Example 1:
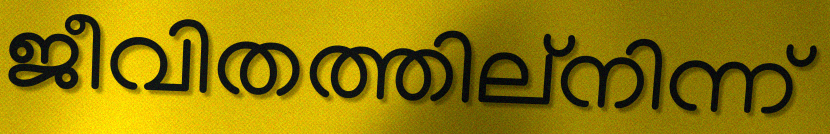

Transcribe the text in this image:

ജീവിതത്തില്നിന്ന്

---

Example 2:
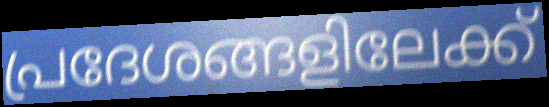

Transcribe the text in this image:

പ്രദേശങ്ങളിലേക്ക്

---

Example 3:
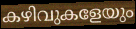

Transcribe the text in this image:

കഴിവുകളേയും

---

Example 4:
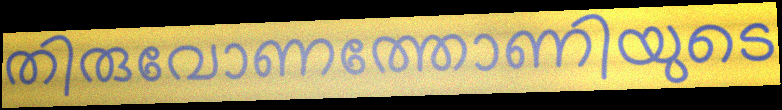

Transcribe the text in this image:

തിരുവോണത്തോണിയുടെ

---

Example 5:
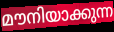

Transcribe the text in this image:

മൗനിയാക്കുന്ന